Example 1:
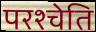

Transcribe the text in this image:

परश्चेति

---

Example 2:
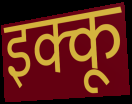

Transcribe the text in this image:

इक्कू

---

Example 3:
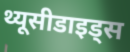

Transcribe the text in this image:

थ्यूसीडाइड्स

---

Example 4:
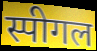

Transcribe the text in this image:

स्पीगल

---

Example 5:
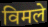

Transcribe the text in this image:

विमले